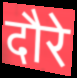
दौरे